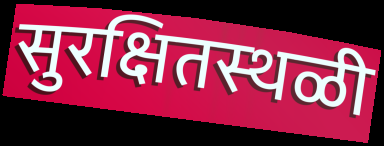
सुरक्षितस्थळी